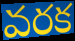
వరక